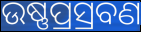
ଉଷ୍ଣପ୍ରସ୍ରବଣ